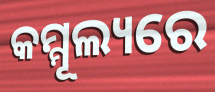
କମ୍ମୂଲ୍ୟରେ